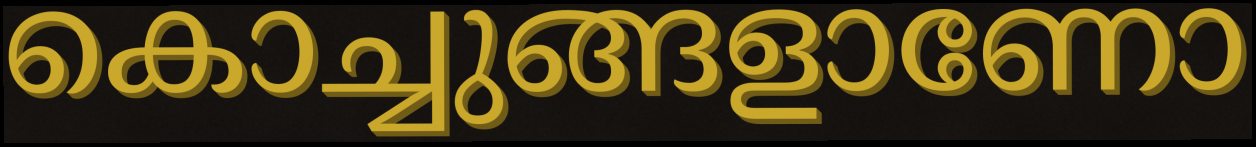
കൊച്ചുങ്ങളാണോ